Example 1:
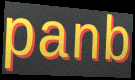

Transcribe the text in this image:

panb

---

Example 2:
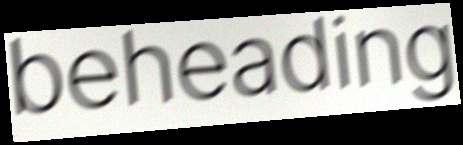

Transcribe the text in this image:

beheading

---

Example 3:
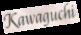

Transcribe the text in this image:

Kawaguchi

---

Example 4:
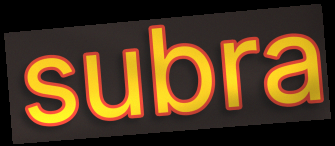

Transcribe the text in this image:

subra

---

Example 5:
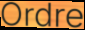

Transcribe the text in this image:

Ordre